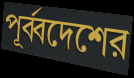
পূর্ব্বদেশের